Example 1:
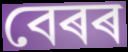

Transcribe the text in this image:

বেৰৰ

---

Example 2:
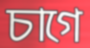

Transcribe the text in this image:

চাগে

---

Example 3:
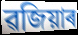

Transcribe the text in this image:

ৱজিয়াৰ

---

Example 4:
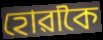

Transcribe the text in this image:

হোৱাকৈ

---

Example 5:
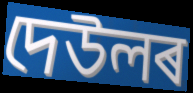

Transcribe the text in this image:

দেউলৰ